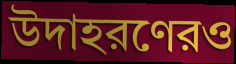
উদাহরণেরও